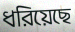
ধরিয়েছে